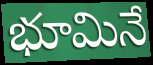
భూమినే